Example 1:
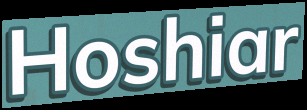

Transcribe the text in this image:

Hoshiar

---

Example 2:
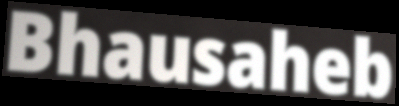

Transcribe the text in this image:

Bhausaheb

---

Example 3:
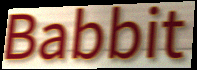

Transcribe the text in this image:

Babbit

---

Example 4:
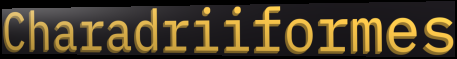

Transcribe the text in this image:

Charadriiformes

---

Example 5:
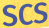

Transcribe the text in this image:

SCS